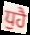
ਧੁਹੈ